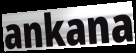
ankana